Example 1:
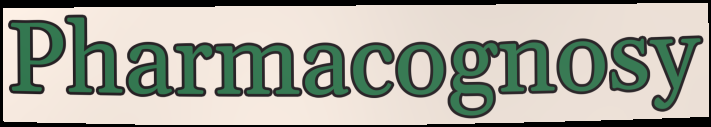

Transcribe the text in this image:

Pharmacognosy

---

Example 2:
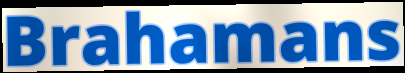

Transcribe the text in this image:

Brahamans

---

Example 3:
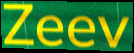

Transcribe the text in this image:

Zeev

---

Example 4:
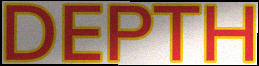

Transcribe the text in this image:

DEPTH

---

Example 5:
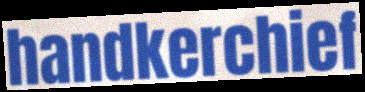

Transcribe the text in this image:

handkerchief